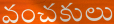
వంచకులు